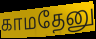
காமதேனு